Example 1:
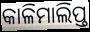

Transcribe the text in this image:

କାଳିମାଲିପ୍ତ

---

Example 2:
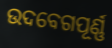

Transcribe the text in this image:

ଉଦବେଗପୂର୍ଣ୍ଣ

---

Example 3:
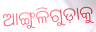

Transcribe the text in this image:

ଆଙ୍ଗୁଳିଗୁଡ଼ାକୁ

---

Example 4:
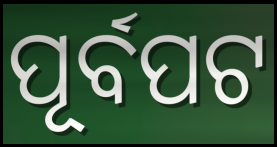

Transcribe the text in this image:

ପୂର୍ବପଟ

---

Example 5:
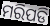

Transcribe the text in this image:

ମରିପଡି